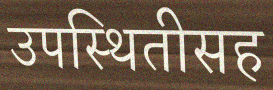
उपस्थितीसह